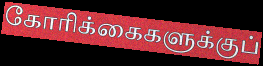
கோரிக்கைகளுக்குப்